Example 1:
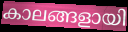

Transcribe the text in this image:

കാലങ്ങളായി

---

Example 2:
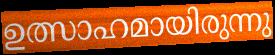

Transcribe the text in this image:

ഉത്സാഹമായിരുന്നു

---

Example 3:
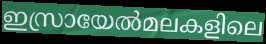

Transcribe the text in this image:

ഇസ്രായേൽമലകളിലെ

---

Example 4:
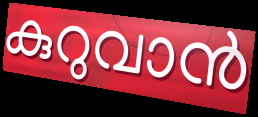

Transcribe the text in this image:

കുറുവാൻ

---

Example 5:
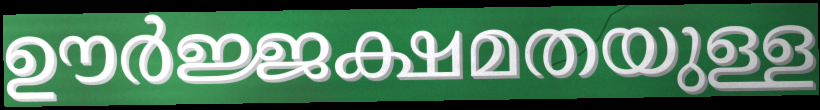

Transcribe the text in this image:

ഊർജ്ജക്ഷമതയുള്ള